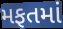
મફતમાં